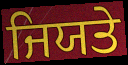
ਜਿਯਤੇ